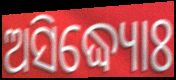
ଅସିଦ୍ଧ୍ୟୋଃ